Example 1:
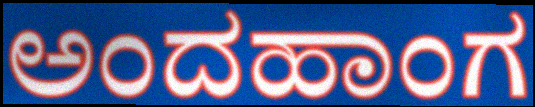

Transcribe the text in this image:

ಅಂದಹಾಂಗ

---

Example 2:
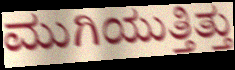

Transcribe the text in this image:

ಮುಗಿಯುತ್ತಿತ್ತು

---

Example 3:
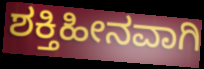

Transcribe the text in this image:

ಶಕ್ತಿಹೀನವಾಗಿ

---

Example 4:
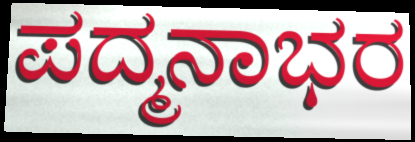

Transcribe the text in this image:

ಪದ್ಮನಾಭರ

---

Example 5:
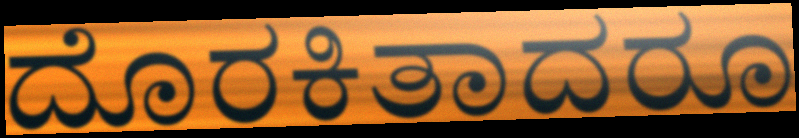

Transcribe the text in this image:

ದೊರಕಿತಾದರೂ